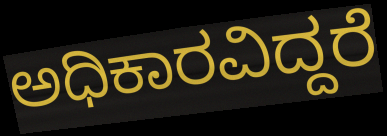
ಅಧಿಕಾರವಿದ್ದರೆ